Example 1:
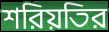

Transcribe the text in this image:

শরিয়তির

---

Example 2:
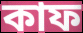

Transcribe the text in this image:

কাফ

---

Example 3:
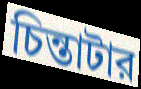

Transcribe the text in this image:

চিন্তাটার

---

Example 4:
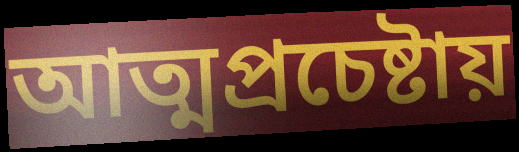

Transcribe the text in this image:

আত্মপ্রচেষ্টায়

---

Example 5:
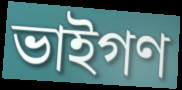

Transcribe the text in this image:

ভাইগণ